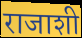
राजाशी